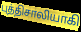
புத்திசாலியாகி